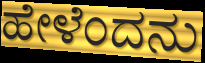
ಹೇಳೆಂದನು